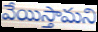
వేయిస్తామని